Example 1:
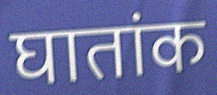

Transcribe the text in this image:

घातांक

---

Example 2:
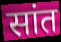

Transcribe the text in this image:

सांत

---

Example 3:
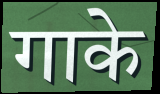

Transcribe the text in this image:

गाके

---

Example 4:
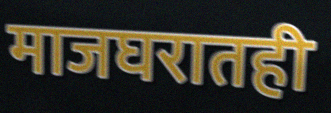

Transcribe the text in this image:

माजघरातही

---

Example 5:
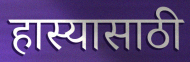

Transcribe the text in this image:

हास्यासाठी